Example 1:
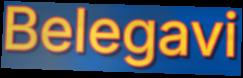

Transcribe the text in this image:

Belegavi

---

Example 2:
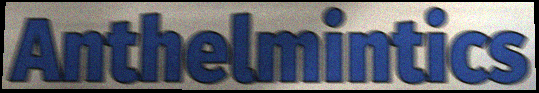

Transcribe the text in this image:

Anthelmintics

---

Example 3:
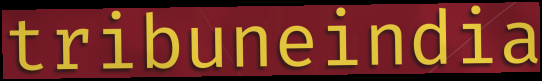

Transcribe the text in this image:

tribuneindia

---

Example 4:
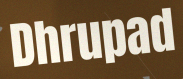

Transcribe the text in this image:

Dhrupad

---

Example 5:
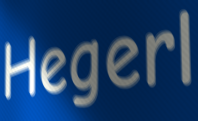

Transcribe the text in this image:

Hegerl